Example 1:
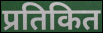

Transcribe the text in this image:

प्रतिकित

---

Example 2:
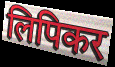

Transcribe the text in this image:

लिपिकर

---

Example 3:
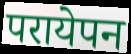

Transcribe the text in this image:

परायेपन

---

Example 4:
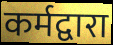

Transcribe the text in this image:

कर्मद्वारा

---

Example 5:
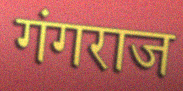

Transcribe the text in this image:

गंगराज